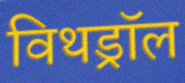
विथड्रॉल